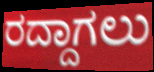
ರದ್ದಾಗಲು